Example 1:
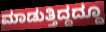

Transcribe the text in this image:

ಮಾಡುತ್ತಿದ್ದದ್ದೂ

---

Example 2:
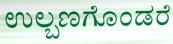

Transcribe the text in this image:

ಉಲ್ಬಣಗೊಂಡರೆ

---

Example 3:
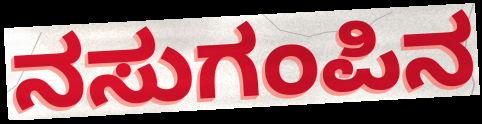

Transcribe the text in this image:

ನಸುಗಂಪಿನ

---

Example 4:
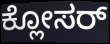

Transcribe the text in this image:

ಕ್ಲೋಸರ್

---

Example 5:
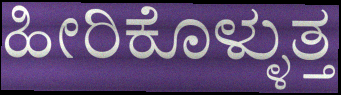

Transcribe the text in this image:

ಹೀರಿಕೊಳ್ಳುತ್ತ